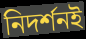
নিদর্শনই